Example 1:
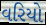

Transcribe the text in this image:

વરિયો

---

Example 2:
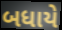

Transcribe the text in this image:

બધાયે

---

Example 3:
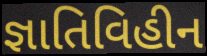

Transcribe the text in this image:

જ્ઞાતિવિહીન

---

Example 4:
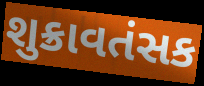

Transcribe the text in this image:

શુક્રાવતંસક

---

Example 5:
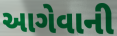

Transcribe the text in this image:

આગેવાની